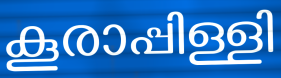
കൂരാപ്പിള്ളി